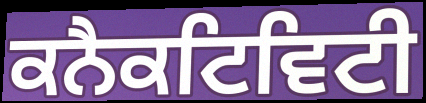
ਕਨੈਕਟਿਵਿਟੀ